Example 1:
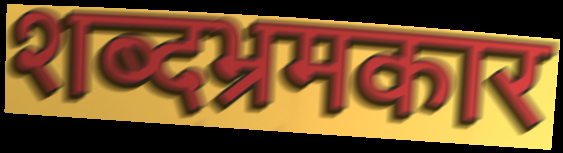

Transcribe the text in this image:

शब्दभ्रमकार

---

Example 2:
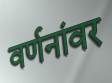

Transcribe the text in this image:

वर्णनांवर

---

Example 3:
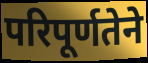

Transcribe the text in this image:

परिपूर्णतेने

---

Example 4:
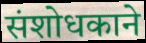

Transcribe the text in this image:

संशोधकाने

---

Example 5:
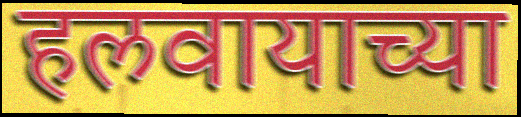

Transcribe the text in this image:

हलवायाच्या